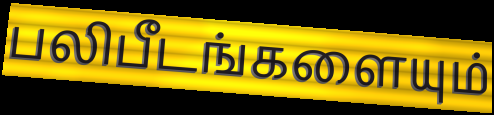
பலிபீடங்களையும்